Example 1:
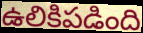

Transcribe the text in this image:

ఉలికిపడింది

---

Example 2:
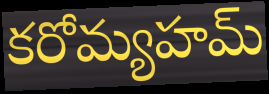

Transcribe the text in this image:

కరోమ్యహమ్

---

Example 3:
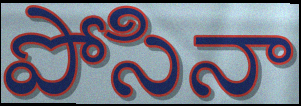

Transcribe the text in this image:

పోసినా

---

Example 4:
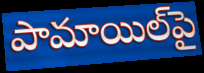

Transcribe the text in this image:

పామాయిల్‌పై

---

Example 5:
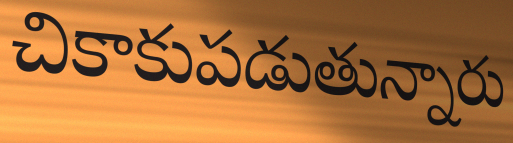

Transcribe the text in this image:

చికాకుపడుతున్నారు